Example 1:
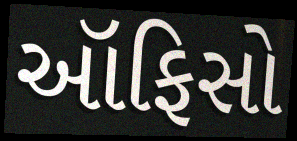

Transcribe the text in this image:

ઑફિસો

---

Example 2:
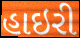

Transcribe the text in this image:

હાઇરી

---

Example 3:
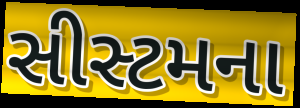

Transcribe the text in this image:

સીસ્ટમના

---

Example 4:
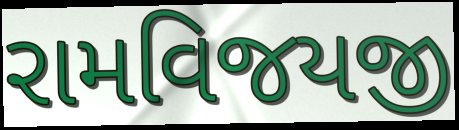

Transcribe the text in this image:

રામવિજયજી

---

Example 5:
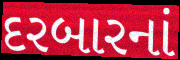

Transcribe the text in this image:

દરબારનાં